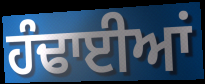
ਹੰਢਾਈਆਂ